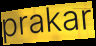
prakar